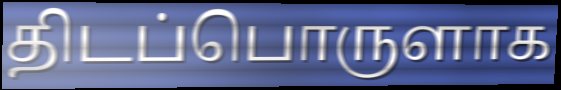
திடப்பொருளாக